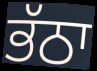
ਭੱਠਾ